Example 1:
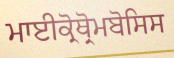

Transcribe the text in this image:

ਮਾਈਕ੍ਰੋਥ੍ਰੋਮਬੋਸਿਸ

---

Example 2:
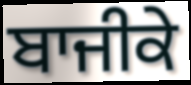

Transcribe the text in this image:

ਬਾਜੀਕੇ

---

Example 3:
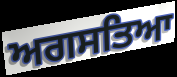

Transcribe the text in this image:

ਅਗਸਤਿਆ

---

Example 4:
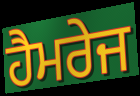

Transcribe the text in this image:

ਹੈਮਰੇਜ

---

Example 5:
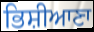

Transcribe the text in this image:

ਭਿਸ਼ੀਆਣਾ